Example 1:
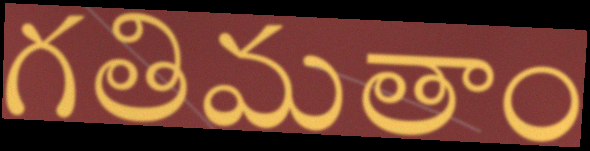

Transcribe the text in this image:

గతిమతాం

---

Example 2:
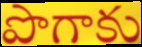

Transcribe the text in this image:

పొగాకు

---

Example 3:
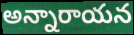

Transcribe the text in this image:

అన్నారాయన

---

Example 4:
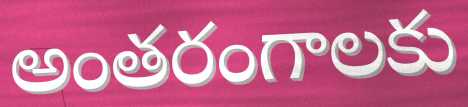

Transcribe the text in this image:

అంతరంగాలకు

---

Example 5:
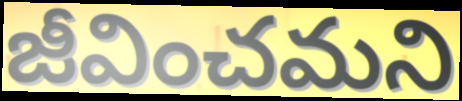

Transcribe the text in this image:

జీవించమని